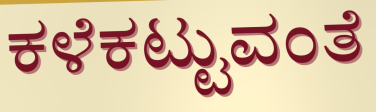
ಕಳೆಕಟ್ಟುವಂತೆ